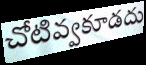
చోటివ్వకూడదు